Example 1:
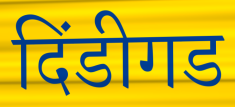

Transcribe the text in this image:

दिंडीगड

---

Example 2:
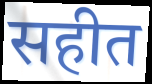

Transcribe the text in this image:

सहीत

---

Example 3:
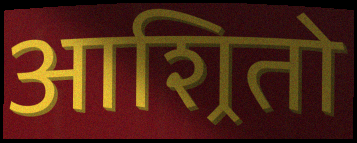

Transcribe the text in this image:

आश्रितो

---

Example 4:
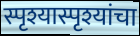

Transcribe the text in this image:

स्पृश्यास्पृश्यांचा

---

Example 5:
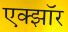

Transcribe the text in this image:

एक्झॉर